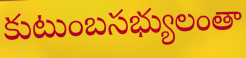
కుటుంబసభ్యులంతా